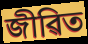
জীৱিত